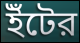
ইঁটের